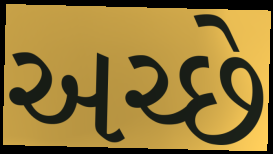
અચ્છે